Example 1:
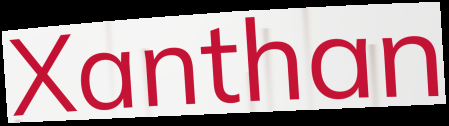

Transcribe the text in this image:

Xanthan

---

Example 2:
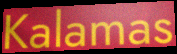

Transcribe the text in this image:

Kalamas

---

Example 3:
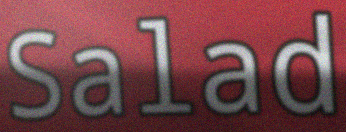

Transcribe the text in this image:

Salad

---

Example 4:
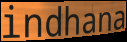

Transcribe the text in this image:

indhana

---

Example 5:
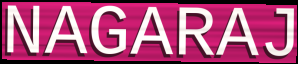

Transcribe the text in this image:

NAGARAJ